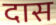
दास